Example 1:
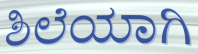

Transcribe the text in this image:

ಶಿಲೆಯಾಗಿ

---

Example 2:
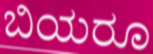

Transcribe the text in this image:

ಬಿಯರೂ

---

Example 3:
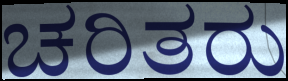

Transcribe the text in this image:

ಚರಿತರು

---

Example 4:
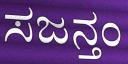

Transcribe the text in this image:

ಸಜನ್ತಂ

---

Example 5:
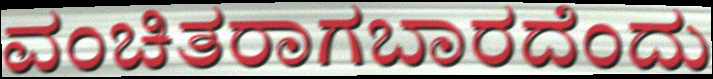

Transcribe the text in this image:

ವಂಚಿತರಾಗಬಾರದೆಂದು